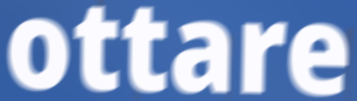
ottare